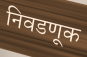
निवडणूक